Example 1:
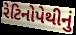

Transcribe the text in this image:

રેટિનોપેથીનું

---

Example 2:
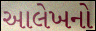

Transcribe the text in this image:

આલેખનો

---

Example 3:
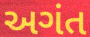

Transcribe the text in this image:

અગંત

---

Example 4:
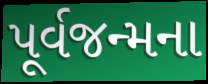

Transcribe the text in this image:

પૂર્વજન્મના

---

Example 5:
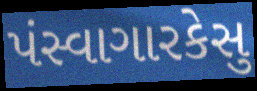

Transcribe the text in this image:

પંસ્વાગારકેસુ